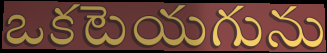
ఒకటెయగును